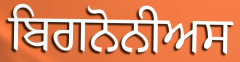
ਬਿਗਨੋਨੀਅਸ